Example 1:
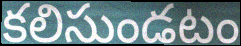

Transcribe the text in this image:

కలిసుండటం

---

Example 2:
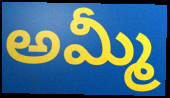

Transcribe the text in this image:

అమ్మీ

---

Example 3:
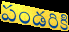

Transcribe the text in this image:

పండరికి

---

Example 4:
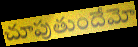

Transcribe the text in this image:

చూపుతుందేమో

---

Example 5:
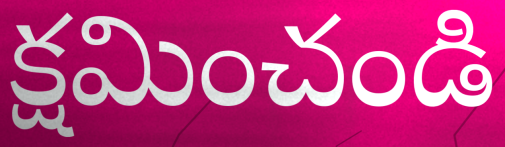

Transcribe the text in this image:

క్షమించండి